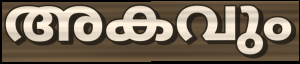
അകവും